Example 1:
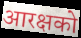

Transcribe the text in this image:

आरक्षको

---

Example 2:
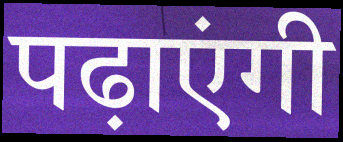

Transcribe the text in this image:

पढ़ाएंगी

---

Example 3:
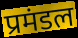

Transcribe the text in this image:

प्रमंडल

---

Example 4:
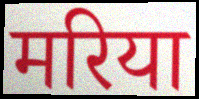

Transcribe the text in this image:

मरिया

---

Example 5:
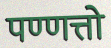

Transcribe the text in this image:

पण्णत्तो